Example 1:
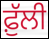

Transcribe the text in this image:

ਫ਼ੁੱਲੀ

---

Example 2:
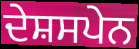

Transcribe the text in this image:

ਦੇਸ਼ਸਪੇਨ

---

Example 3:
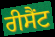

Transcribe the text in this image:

ਰੀਸੈਂਟ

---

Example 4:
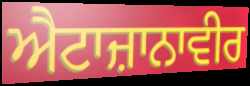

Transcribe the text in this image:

ਐਟਾਜ਼ਾਨਾਵੀਰ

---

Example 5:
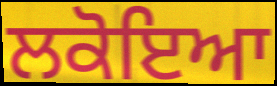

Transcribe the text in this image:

ਲਕੋਇਆ